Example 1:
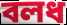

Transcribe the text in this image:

বলধ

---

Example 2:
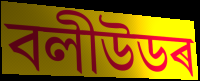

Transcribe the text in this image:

বলীউডৰ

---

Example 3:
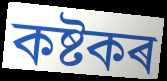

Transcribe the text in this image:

কষ্টকৰ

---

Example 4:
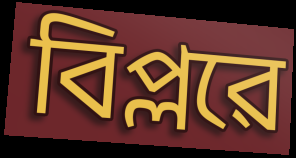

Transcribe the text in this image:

বিপ্লৱে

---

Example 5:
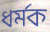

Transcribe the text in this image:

ধৰ্মক